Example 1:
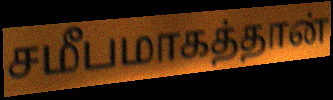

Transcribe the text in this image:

சமீபமாகத்தான்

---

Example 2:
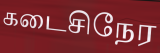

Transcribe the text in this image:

கடைசிநேர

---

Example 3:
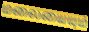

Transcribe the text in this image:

மலையையும்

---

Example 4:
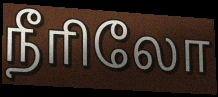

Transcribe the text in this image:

நீரிலோ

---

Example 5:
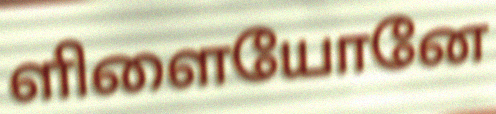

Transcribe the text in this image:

ளிளையோனே